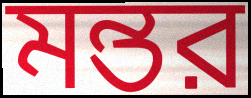
মন্তর